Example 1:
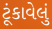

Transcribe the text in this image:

ટૂંકાવેલું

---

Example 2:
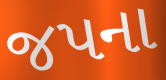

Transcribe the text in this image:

જપના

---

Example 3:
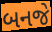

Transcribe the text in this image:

બનજે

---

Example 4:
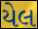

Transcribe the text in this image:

યેલ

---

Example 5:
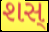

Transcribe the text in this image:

શસ્